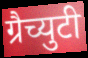
ग्रैच्युटी